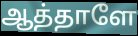
ஆத்தாளே